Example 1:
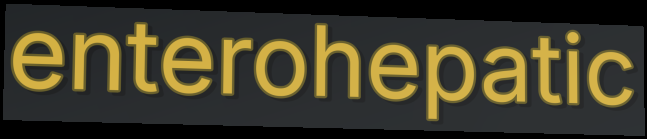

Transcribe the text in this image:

enterohepatic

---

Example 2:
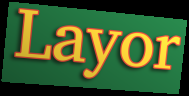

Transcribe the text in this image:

Layor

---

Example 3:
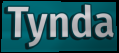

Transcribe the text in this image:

Tynda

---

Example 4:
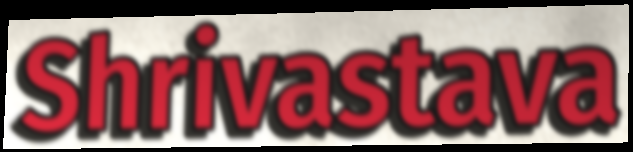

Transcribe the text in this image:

Shrivastava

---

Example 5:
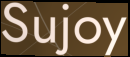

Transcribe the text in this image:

Sujoy